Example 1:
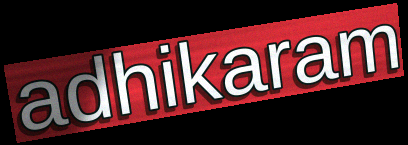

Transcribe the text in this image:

adhikaram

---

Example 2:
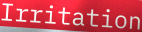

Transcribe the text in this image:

Irritation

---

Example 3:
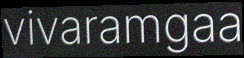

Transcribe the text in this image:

vivaramgaa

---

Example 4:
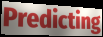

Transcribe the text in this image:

Predicting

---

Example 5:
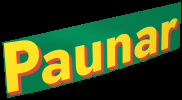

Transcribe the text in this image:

Paunar